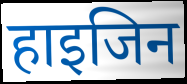
हाइजिन